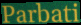
Parbati